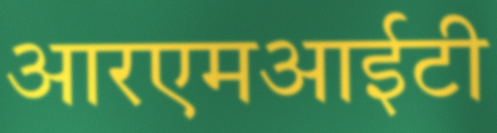
आरएमआईटी